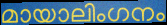
മായാലിംഗനം